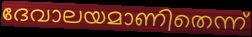
ദേവാലയമാണിതെന്ന്